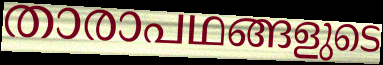
താരാപഥങ്ങളുടെ